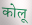
कोलू